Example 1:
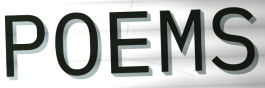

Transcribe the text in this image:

POEMS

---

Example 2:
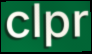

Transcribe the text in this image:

clpr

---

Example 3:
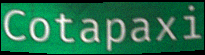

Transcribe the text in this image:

Cotapaxi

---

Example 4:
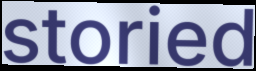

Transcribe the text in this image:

storied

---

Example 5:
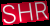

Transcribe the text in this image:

SHR